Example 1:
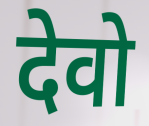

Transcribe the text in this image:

देवो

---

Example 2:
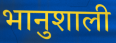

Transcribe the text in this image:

भानुशाली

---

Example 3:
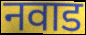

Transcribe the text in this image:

नवाड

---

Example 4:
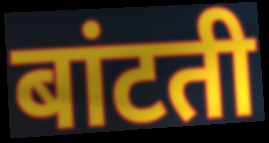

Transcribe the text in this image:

बांटती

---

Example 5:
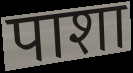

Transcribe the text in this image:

पाशा